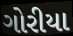
ગોરીયા